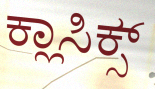
ಕ್ಲಾಸಿಕ್ಸ್